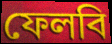
ফেলবি